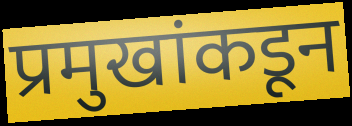
प्रमुखांकडून